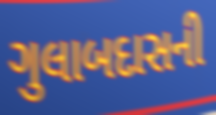
ગુલાબદાસની